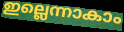
ഇല്ലെന്നാകാം